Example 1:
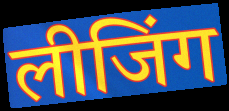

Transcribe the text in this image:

लीजिंग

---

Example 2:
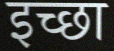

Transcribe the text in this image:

इच्छा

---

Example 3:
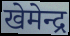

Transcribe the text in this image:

खेमेन्द्र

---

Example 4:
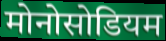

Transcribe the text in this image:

मोनोसोडियम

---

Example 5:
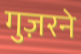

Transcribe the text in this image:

गुज़रने